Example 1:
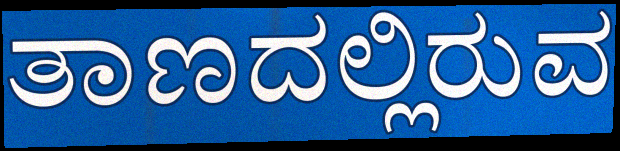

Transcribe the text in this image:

ತಾಣದಲ್ಲಿರುವ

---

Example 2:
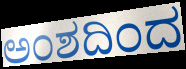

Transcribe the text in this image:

ಅಂಶದಿಂದ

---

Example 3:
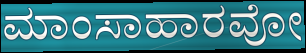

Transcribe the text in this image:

ಮಾಂಸಾಹಾರವೋ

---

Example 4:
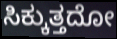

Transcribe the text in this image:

ಸಿಕ್ಕುತ್ತದೋ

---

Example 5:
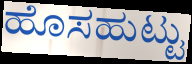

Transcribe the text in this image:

ಹೊಸಹುಟ್ಟು